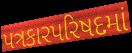
પત્રકારપરિષદમાં